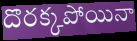
దొరక్కపోయినా